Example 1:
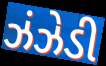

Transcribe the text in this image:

ઝંઝેડી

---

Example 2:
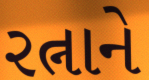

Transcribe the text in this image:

રત્નાને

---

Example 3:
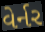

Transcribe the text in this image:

વેર્નર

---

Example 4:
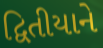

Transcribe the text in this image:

દ્વિતીયાને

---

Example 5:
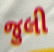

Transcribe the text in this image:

જુલી